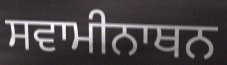
ਸਵਾਮੀਨਾਥਨ